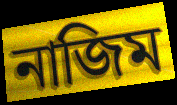
নাজিম